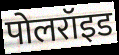
पोलरॉइड